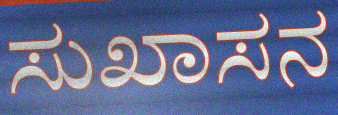
ಸುಖಾಸನ